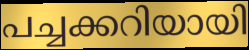
പച്ചക്കറിയായി